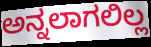
ಅನ್ನಲಾಗಲಿಲ್ಲ